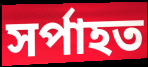
সর্পাহত